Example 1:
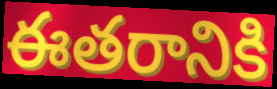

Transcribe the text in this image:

ఈతరానికి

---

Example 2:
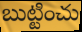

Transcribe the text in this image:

బుట్టించు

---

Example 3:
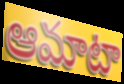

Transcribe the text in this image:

ఆమాటా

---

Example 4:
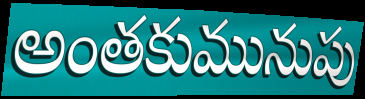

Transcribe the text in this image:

అంతకుమునుపు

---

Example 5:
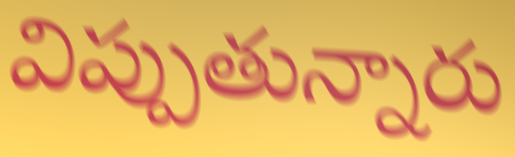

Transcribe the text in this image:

విప్పుతున్నారు